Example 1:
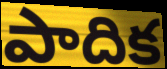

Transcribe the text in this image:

పాదిక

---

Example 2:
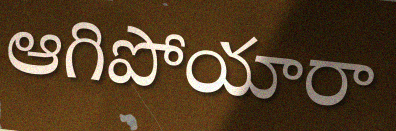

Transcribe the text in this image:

ఆగిపోయారా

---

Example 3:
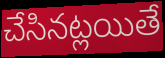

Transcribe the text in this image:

చేసినట్లయితే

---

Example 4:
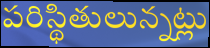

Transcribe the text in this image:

పరిస్థితులున్నట్లు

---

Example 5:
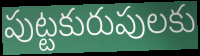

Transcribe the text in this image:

పుట్టకురుపులకు